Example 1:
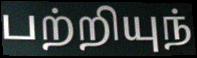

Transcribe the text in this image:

பற்றியுந்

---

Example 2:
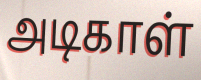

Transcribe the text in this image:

அடிகாள்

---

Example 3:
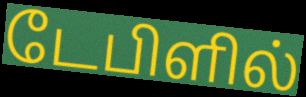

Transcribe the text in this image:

டேபிளில்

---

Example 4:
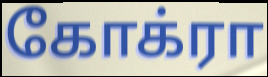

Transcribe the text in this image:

கோக்ரா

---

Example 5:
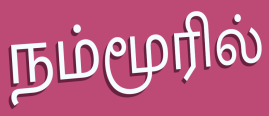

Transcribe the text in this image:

நம்மூரில்